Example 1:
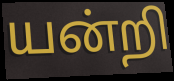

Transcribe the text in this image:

யன்றி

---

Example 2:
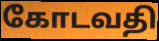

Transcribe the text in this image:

கோடவதி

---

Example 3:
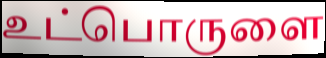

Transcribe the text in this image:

உட்பொருளை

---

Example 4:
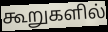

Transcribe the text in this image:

கூறுகளில்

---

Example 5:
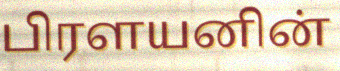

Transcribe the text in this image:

பிரளயனின்